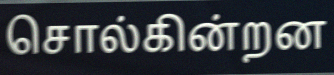
சொல்கின்றன